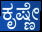
ಕೃಷ್ಣೇ